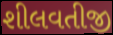
શીલવતીજી